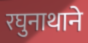
रघुनाथाने